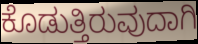
ಕೊಡುತ್ತಿರುವುದಾಗಿ